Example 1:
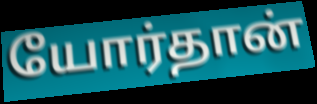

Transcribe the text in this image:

யோர்தான்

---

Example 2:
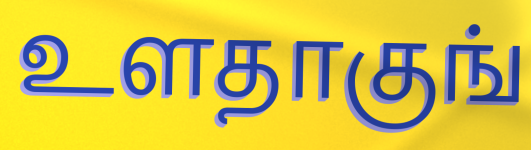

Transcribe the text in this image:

உளதாகுங்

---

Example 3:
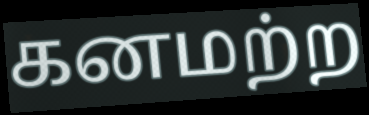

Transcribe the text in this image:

கனமற்ற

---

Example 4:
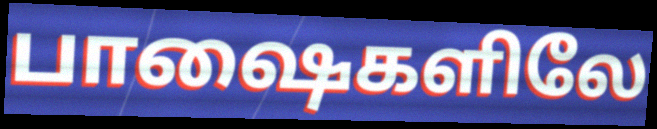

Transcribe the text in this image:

பாஷைகளிலே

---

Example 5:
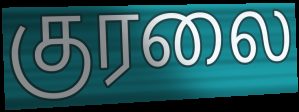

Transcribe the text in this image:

குரலை